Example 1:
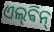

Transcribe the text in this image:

ଏଲ୍‌ଵିନ୍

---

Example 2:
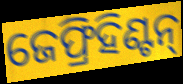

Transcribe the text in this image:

ଜେଫ୍ରିହିଣ୍ଟନ୍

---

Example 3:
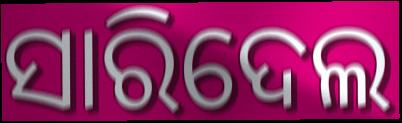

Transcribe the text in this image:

ସାରିଦେଲ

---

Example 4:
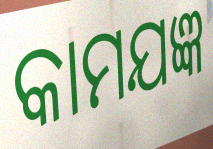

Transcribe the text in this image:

କାମଯଜ୍ଞ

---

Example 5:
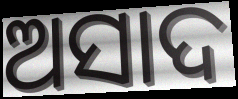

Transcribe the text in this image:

ଅସାଦ